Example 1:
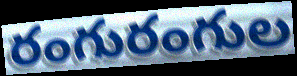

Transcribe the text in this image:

రంగురంగుల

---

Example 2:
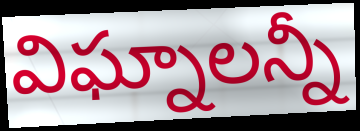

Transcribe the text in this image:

విఘ్నాలన్నీ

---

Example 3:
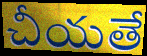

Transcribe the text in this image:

చీయతే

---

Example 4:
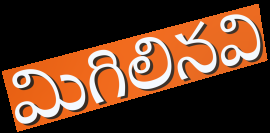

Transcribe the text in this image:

మిగిలినవి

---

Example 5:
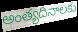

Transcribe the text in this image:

అంత్యదినాలకు